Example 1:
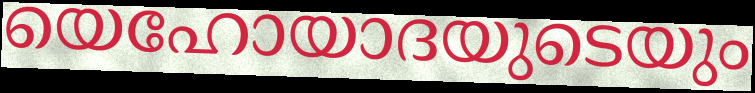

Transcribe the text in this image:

യെഹോയാദയുടെയും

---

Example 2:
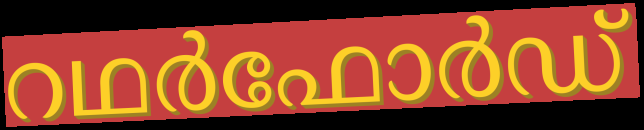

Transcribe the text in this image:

റഥർഫോർഡ്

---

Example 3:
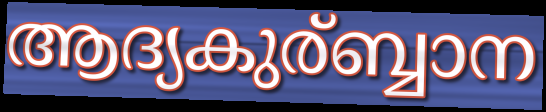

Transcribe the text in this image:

ആദ്യകുര്ബ്ബാന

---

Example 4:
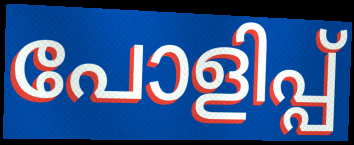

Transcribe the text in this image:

പോളിപ്പ്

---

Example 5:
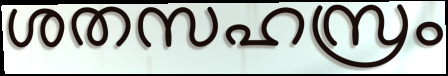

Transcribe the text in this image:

ശതസഹസ്രം